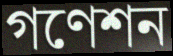
গণেশন